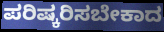
ಪರಿಷ್ಕರಿಸಬೇಕಾದ